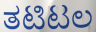
ತಟಿಟಲ